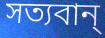
সত্যবান্